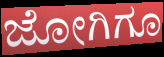
ಜೋಗಿಗೂ